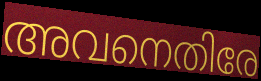
അവനെതിരേ